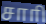
சாரி